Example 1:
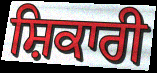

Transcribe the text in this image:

ਸ਼ਿਕਾਰੀ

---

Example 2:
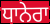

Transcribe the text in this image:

ਧਾਨੇਰਾ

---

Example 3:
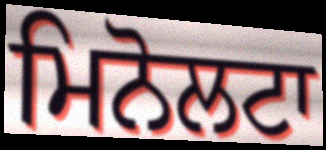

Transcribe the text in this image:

ਮਿਨੋਲਟਾ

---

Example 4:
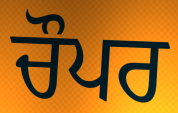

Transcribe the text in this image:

ਚੌਪਰ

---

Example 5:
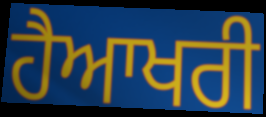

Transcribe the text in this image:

ਹੈਆਖਰੀ